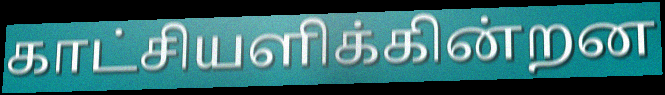
காட்சியளிக்கின்றன